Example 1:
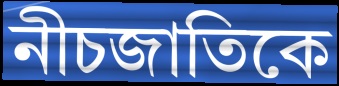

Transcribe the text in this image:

নীচজাতিকে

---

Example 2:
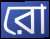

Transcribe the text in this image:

রো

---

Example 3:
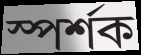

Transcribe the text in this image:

স্পর্শক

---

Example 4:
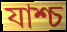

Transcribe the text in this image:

যাশ্চ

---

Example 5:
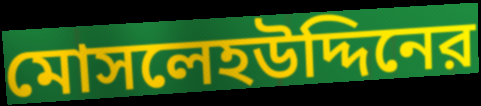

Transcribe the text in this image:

মোসলেহউদ্দিনের